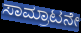
ಸಾಮ್ರಾಟನೇ